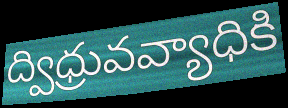
ద్విధ్రువవ్యాధికి